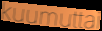
kuumuttai